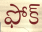
ఫోక్